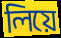
লিয়ে